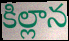
కిల్లాన